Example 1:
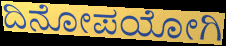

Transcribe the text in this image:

ದಿನೋಪಯೋಗಿ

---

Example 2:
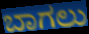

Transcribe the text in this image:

ಬಾಗಲು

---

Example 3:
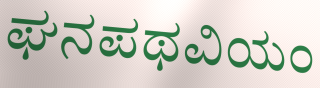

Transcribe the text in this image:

ಘನಪಥವಿಯಂ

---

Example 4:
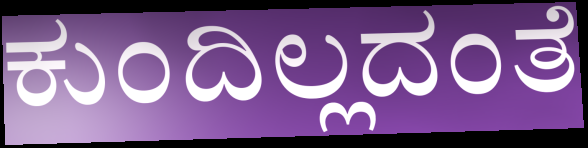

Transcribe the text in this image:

ಕುಂದಿಲ್ಲದಂತೆ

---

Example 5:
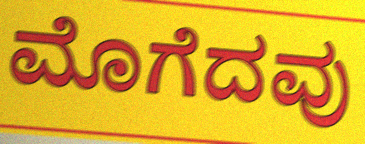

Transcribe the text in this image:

ಮೊಗೆದವು